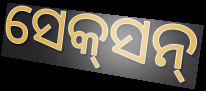
ସେକ୍‌ସନ୍